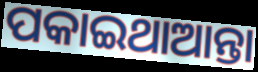
ପକାଇଥାଆନ୍ତା